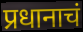
प्रधानाचं